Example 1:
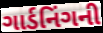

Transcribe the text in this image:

ગાર્ડનિંગની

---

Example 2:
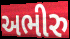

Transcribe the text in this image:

અભીરુ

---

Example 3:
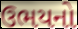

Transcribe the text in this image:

ઉભયનો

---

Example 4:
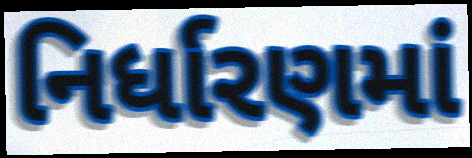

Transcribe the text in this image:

નિર્ધારણમાં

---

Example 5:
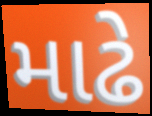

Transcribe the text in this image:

માઢે